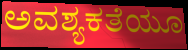
ಅವಶ್ಯಕತೆಯೂ